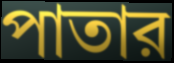
পাতার